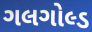
ગલગોલ્ડ